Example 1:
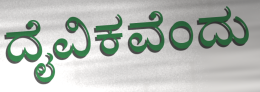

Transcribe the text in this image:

ದೈವಿಕವೆಂದು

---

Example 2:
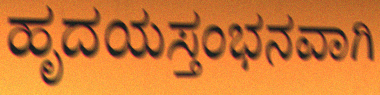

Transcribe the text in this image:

ಹೃದಯಸ್ತಂಭನವಾಗಿ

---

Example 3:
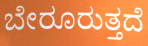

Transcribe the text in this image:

ಬೇರೂರುತ್ತದೆ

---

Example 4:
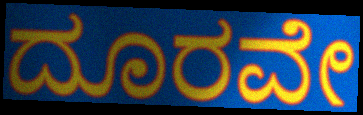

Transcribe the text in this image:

ದೂರವೇ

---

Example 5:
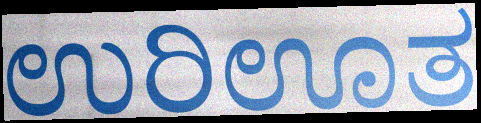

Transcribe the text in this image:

ಉರಿಊತ